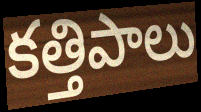
కత్తిపాలు